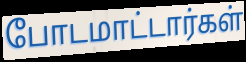
போடமாட்டார்கள்